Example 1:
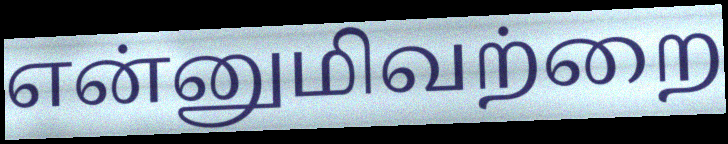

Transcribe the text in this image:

என்னுமிவற்றை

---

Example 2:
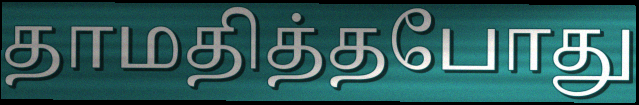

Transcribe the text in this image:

தாமதித்தபோது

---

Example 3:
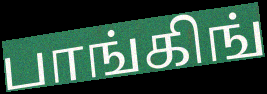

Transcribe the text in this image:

பாங்கிங்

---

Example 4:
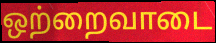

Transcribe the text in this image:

ஒற்றைவாடை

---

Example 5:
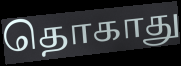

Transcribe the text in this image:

தொகாது